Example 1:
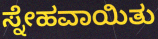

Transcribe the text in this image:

ಸ್ನೇಹವಾಯಿತು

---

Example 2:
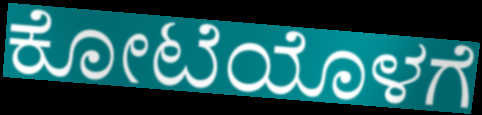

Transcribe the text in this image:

ಕೋಟೆಯೊಳಗೆ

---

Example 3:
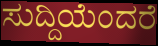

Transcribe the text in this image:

ಸುದ್ದಿಯೆಂದರೆ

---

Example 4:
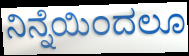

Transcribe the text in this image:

ನಿನ್ನೆಯಿಂದಲೂ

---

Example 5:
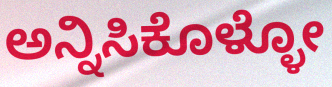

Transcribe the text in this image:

ಅನ್ನಿಸಿಕೊಳ್ಳೋ